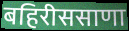
बहिरीससाणा